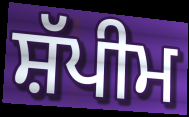
ਸ਼ੱਪੀਮ